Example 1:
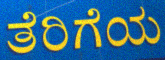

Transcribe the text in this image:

ತೆರಿಗೆಯ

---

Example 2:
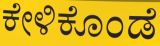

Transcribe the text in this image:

ಕೇಳಿಕೊಂಡೆ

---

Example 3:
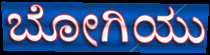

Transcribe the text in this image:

ಬೋಗಿಯು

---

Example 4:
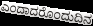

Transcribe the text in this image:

ಎಂದಾದರೊಂದುದಿನ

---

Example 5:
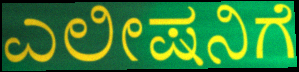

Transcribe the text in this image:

ಎಲೀಷನಿಗೆ